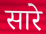
सारे